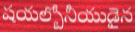
షయల్బోనీయుడైన